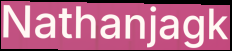
Nathanjagk